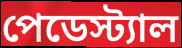
পেডেস্ট্যাল